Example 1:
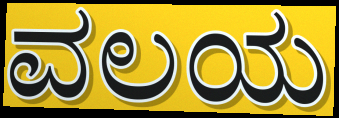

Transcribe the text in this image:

ವಲಯ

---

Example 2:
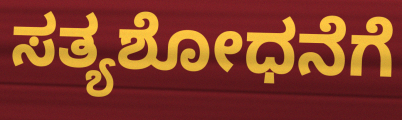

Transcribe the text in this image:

ಸತ್ಯಶೋಧನೆಗೆ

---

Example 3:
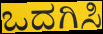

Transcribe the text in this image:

ಒದಗಿಸಿ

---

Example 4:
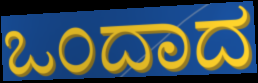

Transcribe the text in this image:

ಒಂದಾದ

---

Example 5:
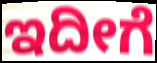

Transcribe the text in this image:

ಇದೀಗೆ